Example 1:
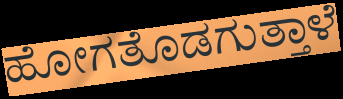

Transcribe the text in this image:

ಹೋಗತೊಡಗುತ್ತಾಳೆ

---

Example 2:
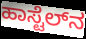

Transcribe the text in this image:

ಹಾಸ್ಟೆಲ್‌ನ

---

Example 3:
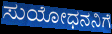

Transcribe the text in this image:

ಸುಯೋಧನನಿಗೆ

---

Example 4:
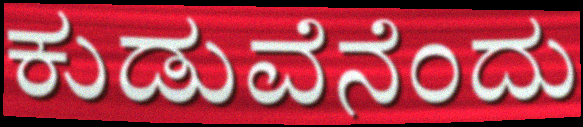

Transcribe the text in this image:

ಕುಡುವೆನೆಂದು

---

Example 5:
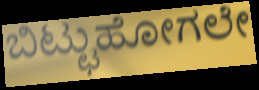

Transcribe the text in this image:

ಬಿಟ್ಟುಹೋಗಲೇ